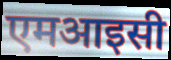
एमआइसी